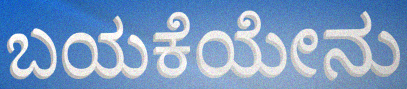
ಬಯಕೆಯೇನು